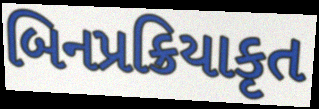
બિનપ્રક્રિયાકૃત